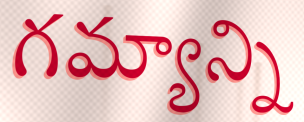
గమ్యాన్ని